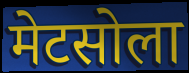
मेटसोला